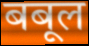
बबूल